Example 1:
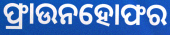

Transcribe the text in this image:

ଫ୍ରାଉନହୋଫର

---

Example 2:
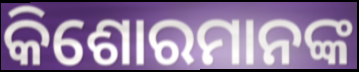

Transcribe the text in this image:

କିଶୋରମାନଙ୍କ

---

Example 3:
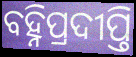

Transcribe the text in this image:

ବହ୍ନିପ୍ରଦୀପ୍ତି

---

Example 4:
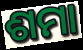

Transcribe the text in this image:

ଶମା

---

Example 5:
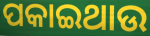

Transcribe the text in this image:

ପକାଇଥାଉ